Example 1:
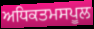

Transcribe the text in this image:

ਅਧਿਕਤਮਸਪੂਲ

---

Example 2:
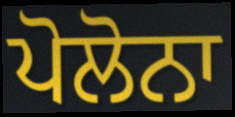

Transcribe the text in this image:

ਪੋਲੋਨਾ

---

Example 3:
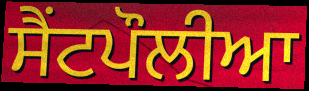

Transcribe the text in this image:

ਸੈਂਟਪੌਲੀਆ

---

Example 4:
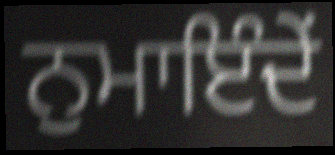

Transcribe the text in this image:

ਨੁਮਾਇੰਦੇਂ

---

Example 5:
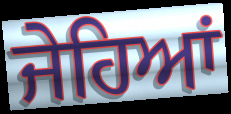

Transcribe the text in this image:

ਜੇਹਿਆਂ